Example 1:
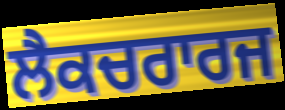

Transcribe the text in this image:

ਲੈਕਚਰਾਰਜ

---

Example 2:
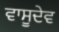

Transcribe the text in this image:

ਵਾਸੂਦੇਵ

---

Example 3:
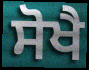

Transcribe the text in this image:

ਸੋਖੈ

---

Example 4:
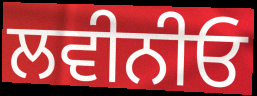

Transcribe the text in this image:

ਲਵੀਨੀਓ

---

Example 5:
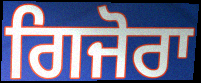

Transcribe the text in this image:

ਗਿਜੋਰਾ